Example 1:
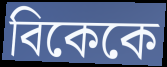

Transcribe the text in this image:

বিকেকে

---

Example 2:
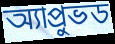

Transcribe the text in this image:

অ্যাপ্রুভড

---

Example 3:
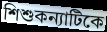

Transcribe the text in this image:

শিশুকন্যাটিকে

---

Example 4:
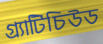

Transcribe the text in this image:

গ্র্যাটিচিউড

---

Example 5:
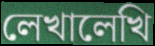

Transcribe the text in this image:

লেখালেখি